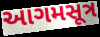
આગમસૂત્ર